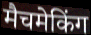
मैचमेकिंग